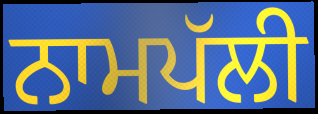
ਨਾਮਪੱਲੀ